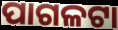
ପାଗଳଟା